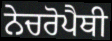
ਨੇਚਰੋਪੈਥੀ